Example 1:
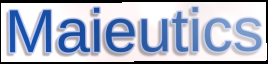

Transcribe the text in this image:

Maieutics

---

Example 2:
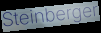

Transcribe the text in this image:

Steinberger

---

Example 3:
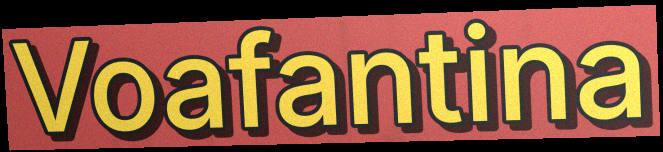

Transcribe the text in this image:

Voafantina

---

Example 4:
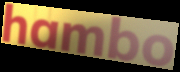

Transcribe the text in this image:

hambo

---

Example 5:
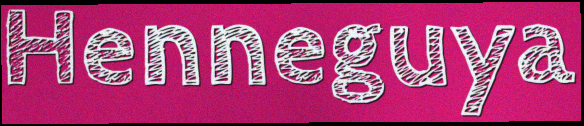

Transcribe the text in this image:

Henneguya